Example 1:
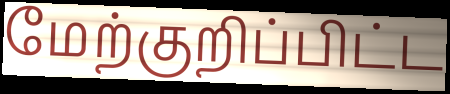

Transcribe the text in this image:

மேற்குறிப்பிட்ட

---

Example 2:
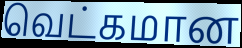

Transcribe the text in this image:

வெட்கமான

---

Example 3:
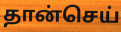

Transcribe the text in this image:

தான்செய்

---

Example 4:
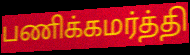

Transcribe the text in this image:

பணிக்கமர்த்தி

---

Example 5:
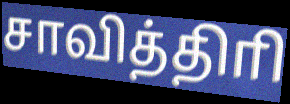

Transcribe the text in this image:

சாவித்திரி